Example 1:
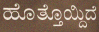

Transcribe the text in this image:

ಹೊತ್ತೊಯ್ದಿದೆ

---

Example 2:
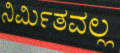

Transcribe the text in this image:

ನಿರ್ಮಿತವಲ್ಲ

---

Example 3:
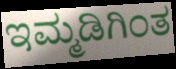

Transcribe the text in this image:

ಇಮ್ಮಡಿಗಿಂತ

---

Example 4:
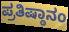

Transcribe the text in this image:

ಪ್ರತಿಷ್ಠಾನಂ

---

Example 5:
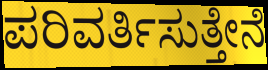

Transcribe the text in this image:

ಪರಿವರ್ತಿಸುತ್ತೇನೆ